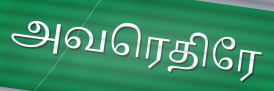
அவரெதிரே